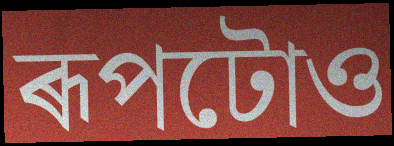
ৰূপটোও